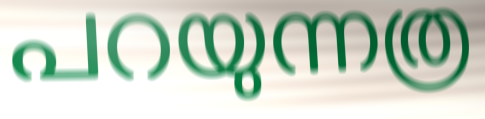
പറയുന്നത്ര